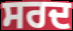
ਸਰਦ